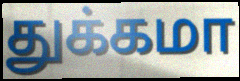
துக்கமா